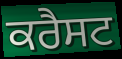
ਕਰੈਸਟ